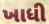
ખાધી